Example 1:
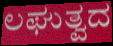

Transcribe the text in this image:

ಲಘುತ್ವದ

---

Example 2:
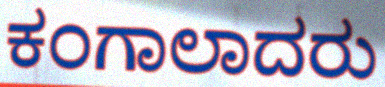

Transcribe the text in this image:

ಕಂಗಾಲಾದರು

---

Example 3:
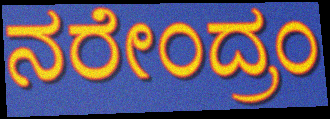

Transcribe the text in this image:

ನರೇಂದ್ರಂ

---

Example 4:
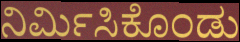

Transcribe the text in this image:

ನಿರ್ಮಿಸಿಕೊಂಡು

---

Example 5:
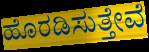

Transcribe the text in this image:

ಹೊರಡಿಸುತ್ತೇವೆ